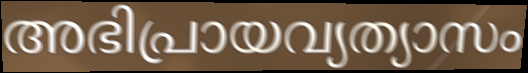
അഭിപ്രായവ്യത്യാസം